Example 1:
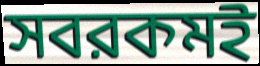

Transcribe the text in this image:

সবরকমই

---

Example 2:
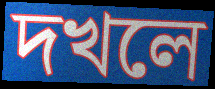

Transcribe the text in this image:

দখলে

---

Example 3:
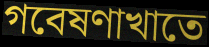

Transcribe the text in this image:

গবেষণাখাতে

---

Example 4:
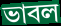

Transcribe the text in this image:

ভাবল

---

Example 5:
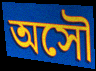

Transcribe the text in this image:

অসৌ